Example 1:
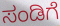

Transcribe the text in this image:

ಸಂಡಿಗೆ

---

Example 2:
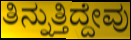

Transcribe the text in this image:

ತಿನ್ನುತ್ತಿದ್ದೇವು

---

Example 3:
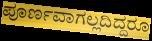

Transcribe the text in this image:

ಪೂರ್ಣವಾಗಲ್ಲದಿದ್ದರೂ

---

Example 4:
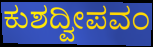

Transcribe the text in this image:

ಕುಶದ್ವೀಪವಂ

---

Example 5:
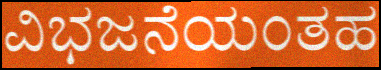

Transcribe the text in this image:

ವಿಭಜನೆಯಂತಹ